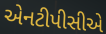
એનટીપીસીએ